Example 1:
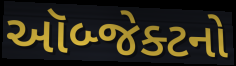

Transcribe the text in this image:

ઑબ્જેક્ટનો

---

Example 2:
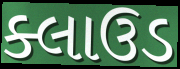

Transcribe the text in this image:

ક્લાઉડ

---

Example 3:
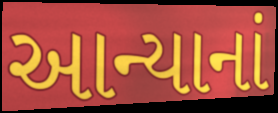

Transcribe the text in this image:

આન્યાનાં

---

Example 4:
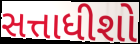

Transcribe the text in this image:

સત્તાધીશો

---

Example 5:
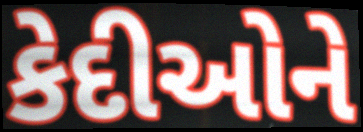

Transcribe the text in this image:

કેદીઓને